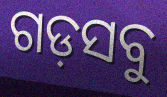
ଗଡ଼ସବୁ